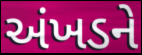
અંખડને